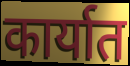
कार्यात